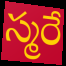
స్మరే